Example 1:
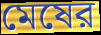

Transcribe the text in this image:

মেষের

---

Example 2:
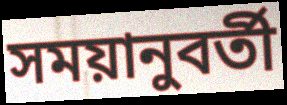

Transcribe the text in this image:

সময়ানুবর্তী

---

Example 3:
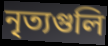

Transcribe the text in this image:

নৃত্যগুলি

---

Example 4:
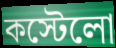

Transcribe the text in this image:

কস্টেলো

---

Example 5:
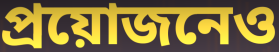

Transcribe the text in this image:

প্রয়োজনেও